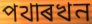
পথাৰখন